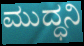
ಮುದ್ಧನಿ